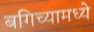
बगिच्यामध्ये